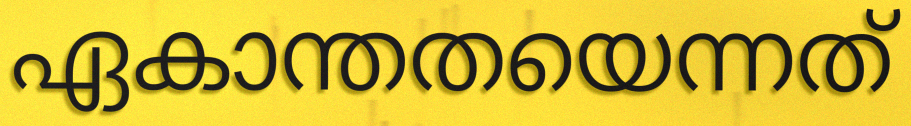
ഏകാന്തതയെന്നത്